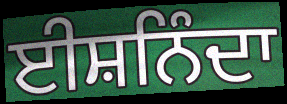
ਈਸ਼ਨਿੰਦਾ